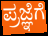
ಪ್ರಜ್ಞೆಗೆ